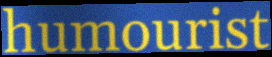
humourist